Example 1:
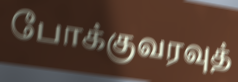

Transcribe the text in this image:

போக்குவரவுத்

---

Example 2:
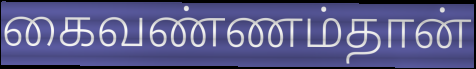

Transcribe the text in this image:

கைவண்ணம்தான்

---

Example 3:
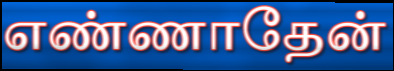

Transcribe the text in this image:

எண்ணாதேன்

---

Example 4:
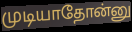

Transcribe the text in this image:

முடியாதோன்னு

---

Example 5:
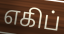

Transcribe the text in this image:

எகிப்